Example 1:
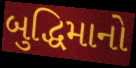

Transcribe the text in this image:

બુદ્ધિમાનો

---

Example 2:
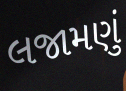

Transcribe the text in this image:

લજામણું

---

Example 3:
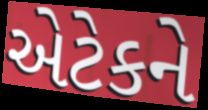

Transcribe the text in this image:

એટેકને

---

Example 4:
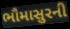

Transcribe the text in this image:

ભૌમાસુરની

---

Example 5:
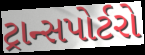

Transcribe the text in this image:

ટ્રાન્સપોર્ટરો